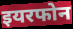
इयरफोन